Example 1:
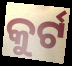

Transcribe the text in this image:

କୁର୍ଟ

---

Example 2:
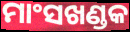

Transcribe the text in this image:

ମାଂସଖଣ୍ଡକ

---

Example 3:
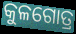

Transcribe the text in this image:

କୁଳଗୋତ୍ର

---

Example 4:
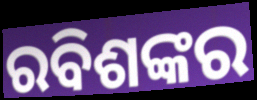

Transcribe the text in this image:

ରବିଶଙ୍କର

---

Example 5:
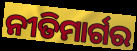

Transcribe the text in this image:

ନୀତିମାର୍ଗର